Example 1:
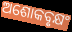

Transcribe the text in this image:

ଅଶୋକବୃକ୍ଷଂ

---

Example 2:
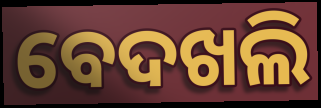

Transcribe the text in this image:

ବେଦଖଲି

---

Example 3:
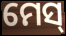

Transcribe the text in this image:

ମେସ୍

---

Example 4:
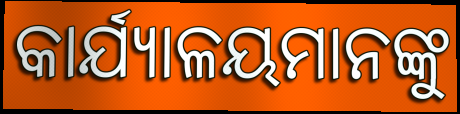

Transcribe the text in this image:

କାର୍ଯ୍ୟାଳୟମାନଙ୍କୁ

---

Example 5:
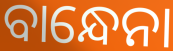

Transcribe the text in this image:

ବାନ୍ଧେନା